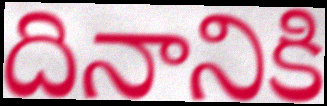
దినానికి